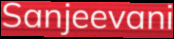
Sanjeevani